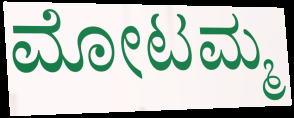
ಮೋಟಮ್ಮ